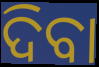
ଦିବା